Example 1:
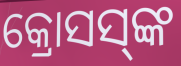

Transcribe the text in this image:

କ୍ରୋସସ୍‌ଙ୍କ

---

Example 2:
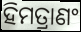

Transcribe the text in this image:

ହିମତ୍ରାଣଂ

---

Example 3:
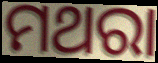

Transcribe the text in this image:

ମଥରା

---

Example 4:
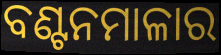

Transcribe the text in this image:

ବଣ୍ଟନମାଳାର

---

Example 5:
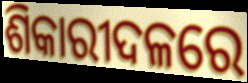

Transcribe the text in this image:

ଶିକାରୀଦଳରେ